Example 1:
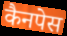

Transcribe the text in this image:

कैनपेस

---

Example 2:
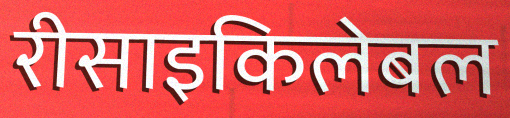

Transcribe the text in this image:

रीसाइकिलेबल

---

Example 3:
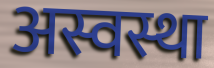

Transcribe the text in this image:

अस्वस्था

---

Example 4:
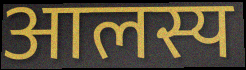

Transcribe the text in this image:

आलस्‍य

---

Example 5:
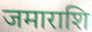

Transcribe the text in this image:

जमाराशि